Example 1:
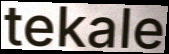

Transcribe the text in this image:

tekale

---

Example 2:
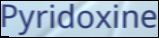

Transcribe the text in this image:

Pyridoxine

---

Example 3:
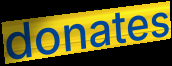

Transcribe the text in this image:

donates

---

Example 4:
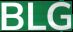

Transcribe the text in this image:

BLG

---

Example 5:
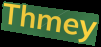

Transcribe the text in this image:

Thmey